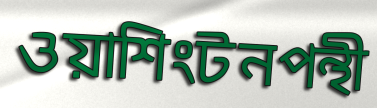
ওয়াশিংটনপন্থী